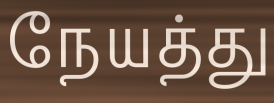
நேயத்து